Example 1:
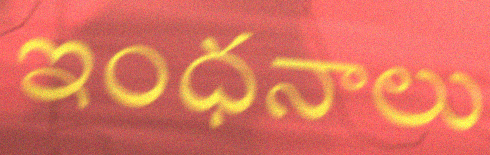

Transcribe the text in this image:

ఇంధనాలు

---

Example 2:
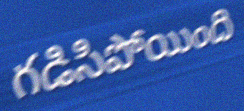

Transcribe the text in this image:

గడిసిపోయింది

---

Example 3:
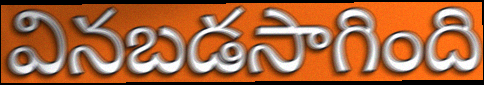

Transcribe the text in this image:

వినబడసాగింది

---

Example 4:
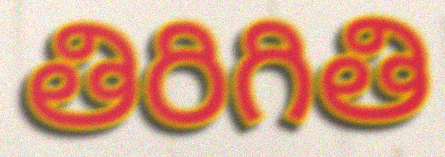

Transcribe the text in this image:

తిరిగితి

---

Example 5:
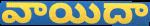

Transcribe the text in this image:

వాయిదా